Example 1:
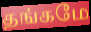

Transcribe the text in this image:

தங்கமே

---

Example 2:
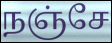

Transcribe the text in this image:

நஞ்சே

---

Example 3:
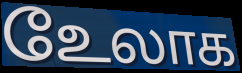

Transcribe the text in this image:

உேலாக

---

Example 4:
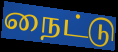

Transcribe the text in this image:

நைட்டு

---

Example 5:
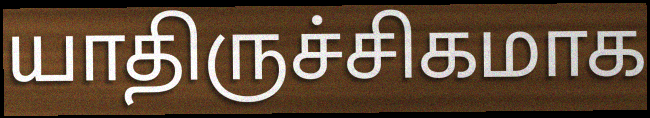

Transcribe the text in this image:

யாதிருச்சிகமாக